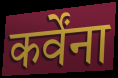
कर्वेंना